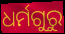
ଧର୍ମଗୁରୁ